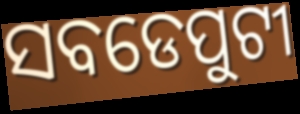
ସବଡେପୁଟୀ